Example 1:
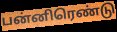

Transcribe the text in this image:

பன்னிரெண்டு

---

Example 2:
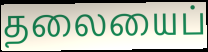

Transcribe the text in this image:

தலையைப்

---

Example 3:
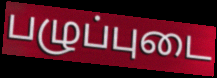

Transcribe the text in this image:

பழுப்புடை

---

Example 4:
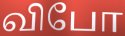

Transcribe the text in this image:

விபோ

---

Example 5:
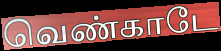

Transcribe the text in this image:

வெண்காடே